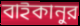
বাইকানুর